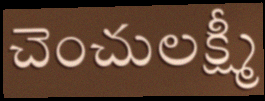
చెంచులక్ష్మీ